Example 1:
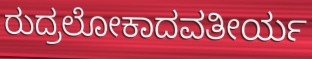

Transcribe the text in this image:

ರುದ್ರಲೋಕಾದವತೀರ್ಯ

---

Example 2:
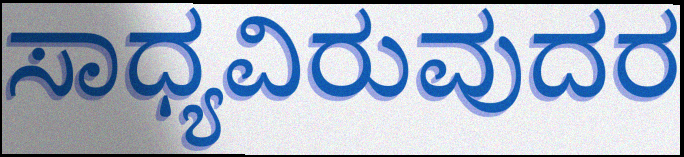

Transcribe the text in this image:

ಸಾಧ್ಯವಿರುವುದರ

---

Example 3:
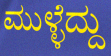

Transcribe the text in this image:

ಮುಳ್ಳೆದ್ದು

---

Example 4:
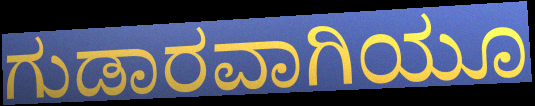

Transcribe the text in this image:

ಗುಡಾರವಾಗಿಯೂ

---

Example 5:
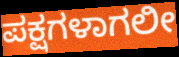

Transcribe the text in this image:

ಪಕ್ಷಗಳಾಗಲೀ